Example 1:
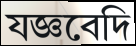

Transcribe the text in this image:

যজ্ঞবেদি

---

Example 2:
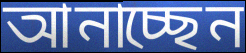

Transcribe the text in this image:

আনাচ্ছেন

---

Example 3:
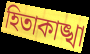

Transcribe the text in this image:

হিতাকাঙ্খা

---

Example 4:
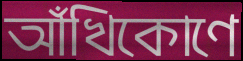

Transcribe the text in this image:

আঁখিকোণে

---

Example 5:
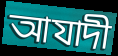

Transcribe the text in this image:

আযাদী